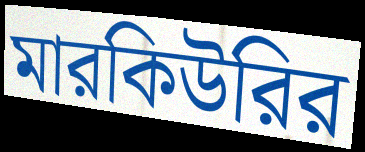
মারকিউরির